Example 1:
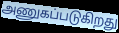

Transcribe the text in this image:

அணுகப்படுகிறது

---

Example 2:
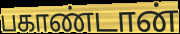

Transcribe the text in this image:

பகாண்டான்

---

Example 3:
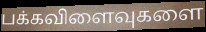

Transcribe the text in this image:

பக்கவிளைவுகளை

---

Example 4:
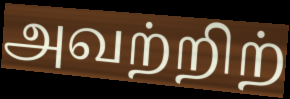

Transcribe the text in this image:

அவற்றிற்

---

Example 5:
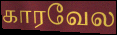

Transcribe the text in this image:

காரவேல